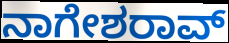
ನಾಗೇಶರಾವ್